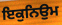
ਇਕੁਨਿਉਮ